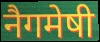
नैगमेषी